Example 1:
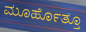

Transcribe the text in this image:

ಮೂರ್ಹೊತ್ತೂ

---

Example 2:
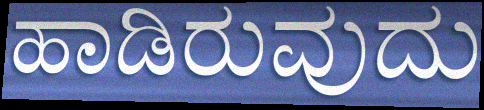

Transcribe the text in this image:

ಹಾಡಿರುವುದು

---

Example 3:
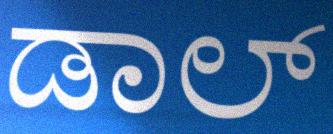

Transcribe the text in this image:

ಡಾಲ್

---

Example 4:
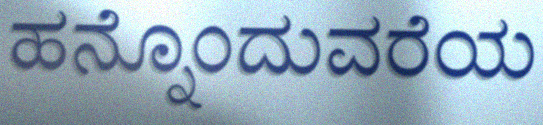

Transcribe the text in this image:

ಹನ್ನೊಂದುವರೆಯ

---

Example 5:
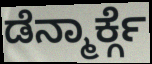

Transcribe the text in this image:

ಡೆನ್ಮಾರ್ಕ್ಗೆ